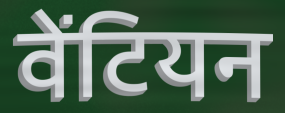
वेंटियन